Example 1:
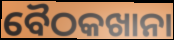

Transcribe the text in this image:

ବୈଠକଖାନା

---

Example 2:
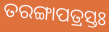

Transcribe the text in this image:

ତରଙ୍ଗାପତ୍ରସ୍ତଃ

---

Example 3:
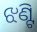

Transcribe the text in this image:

ଝଣ୍ଟି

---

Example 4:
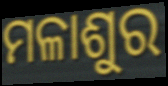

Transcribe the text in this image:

ମଳାଶୁର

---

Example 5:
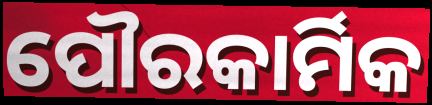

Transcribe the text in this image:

ପୌରକାର୍ମିକ